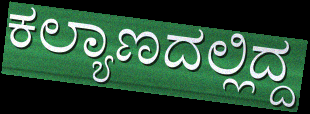
ಕಲ್ಯಾಣದಲ್ಲಿದ್ದ